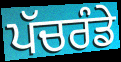
ਪੱਚਰੰਡੇ